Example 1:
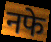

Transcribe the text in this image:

नफे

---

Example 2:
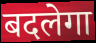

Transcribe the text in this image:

बदलेगा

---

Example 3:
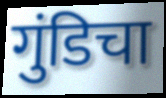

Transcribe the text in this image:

गुंडिचा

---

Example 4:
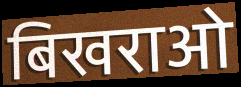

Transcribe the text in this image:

बिखराओ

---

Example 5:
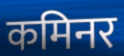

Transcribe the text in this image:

कमिनर